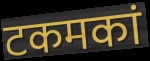
टकमकां